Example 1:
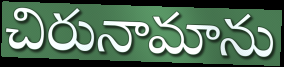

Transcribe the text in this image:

చిరునామాను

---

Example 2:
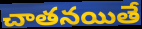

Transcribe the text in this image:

చాతనయితే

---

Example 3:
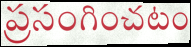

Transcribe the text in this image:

ప్రసంగించటం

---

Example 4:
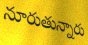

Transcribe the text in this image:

నూరుతున్నారు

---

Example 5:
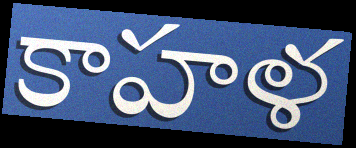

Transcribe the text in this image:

కాహళ